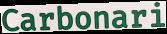
Carbonari